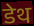
डेथ